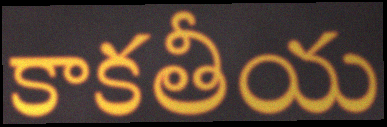
కాకతీయ